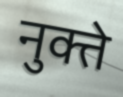
नुक्ते